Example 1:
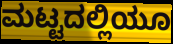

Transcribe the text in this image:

ಮಟ್ಟದಲ್ಲಿಯೂ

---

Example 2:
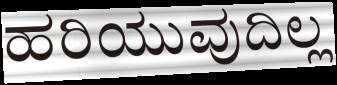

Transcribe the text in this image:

ಹರಿಯುವುದಿಲ್ಲ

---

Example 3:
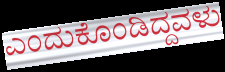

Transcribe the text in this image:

ಎಂದುಕೊಂಡಿದ್ದವಳು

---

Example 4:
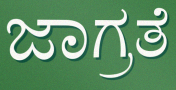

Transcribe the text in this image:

ಜಾಗ್ರತೆ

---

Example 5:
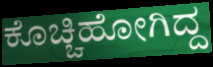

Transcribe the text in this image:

ಕೊಚ್ಚಿಹೋಗಿದ್ದ